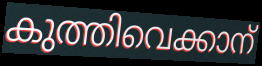
കുത്തിവെക്കാന്